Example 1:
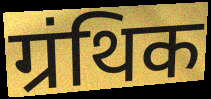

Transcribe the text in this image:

ग्रंथिक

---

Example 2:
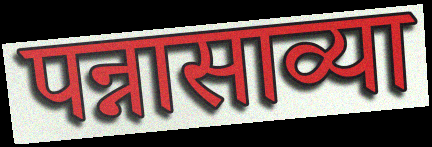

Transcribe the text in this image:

पन्नासाव्या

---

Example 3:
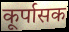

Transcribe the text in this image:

कूर्पासक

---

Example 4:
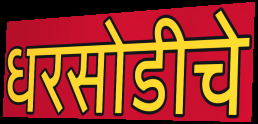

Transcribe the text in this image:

धरसोडीचे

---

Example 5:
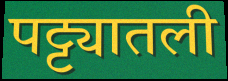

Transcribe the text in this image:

पट्ट्यातली